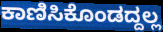
ಕಾಣಿಸಿಕೊಂಡದ್ದಲ್ಲ